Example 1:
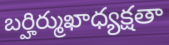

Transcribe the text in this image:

బర్హిర్ముఖాధ్యక్షతా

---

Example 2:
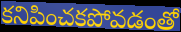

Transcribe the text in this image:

కనిపించకపోవడంతో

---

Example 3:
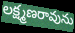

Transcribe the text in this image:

లక్ష్మణరావును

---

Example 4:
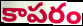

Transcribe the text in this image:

కాపరం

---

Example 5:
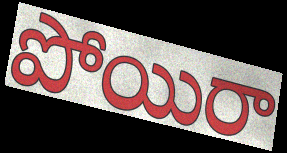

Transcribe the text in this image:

పోయిరా